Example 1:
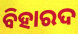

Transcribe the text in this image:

ବିହାରଦ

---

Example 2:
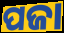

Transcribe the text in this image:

ପଜା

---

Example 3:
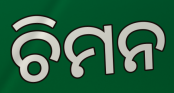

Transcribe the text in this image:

ଚିମନ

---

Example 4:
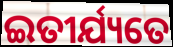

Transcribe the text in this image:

ଇତୀର୍ଯ୍ୟତେ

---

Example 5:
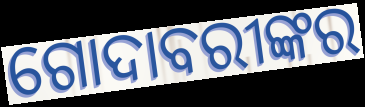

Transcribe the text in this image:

ଗୋଦାବରୀଙ୍କର